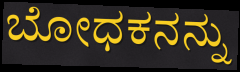
ಬೋಧಕನನ್ನು